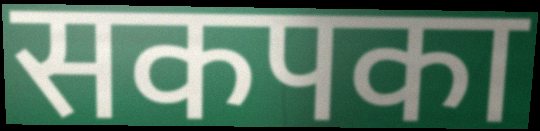
सकपका